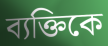
ব্যক্তিকে